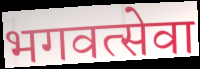
भगवत्सेवा